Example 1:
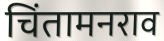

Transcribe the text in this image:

चिंतामनराव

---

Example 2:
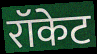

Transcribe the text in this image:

रॉकेट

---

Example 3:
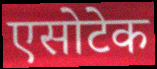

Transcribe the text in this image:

एसोटेक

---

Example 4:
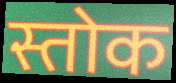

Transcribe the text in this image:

स्तोक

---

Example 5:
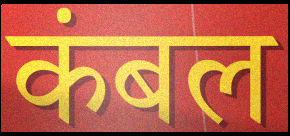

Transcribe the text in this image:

कंबल